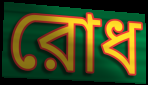
রোধ